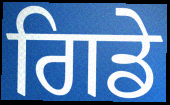
ਗਿਡੇ